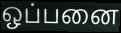
ஒப்பனை